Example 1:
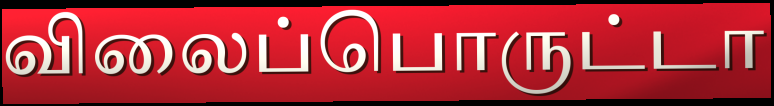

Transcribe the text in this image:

விலைப்பொருட்டா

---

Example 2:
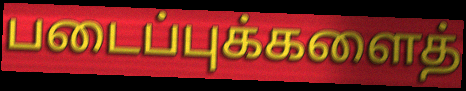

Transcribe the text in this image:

படைப்புக்களைத்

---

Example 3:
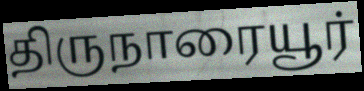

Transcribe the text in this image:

திருநாரையூர்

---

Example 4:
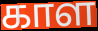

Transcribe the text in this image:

காள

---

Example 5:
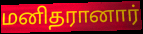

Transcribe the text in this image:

மனிதரானார்